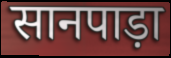
सानपाड़ा